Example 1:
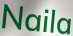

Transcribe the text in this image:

Naila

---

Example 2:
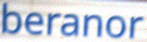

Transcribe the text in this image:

beranor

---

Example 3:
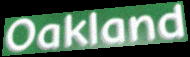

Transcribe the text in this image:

Oakland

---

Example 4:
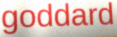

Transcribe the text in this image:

goddard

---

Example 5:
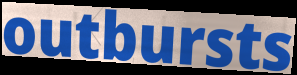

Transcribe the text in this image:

outbursts